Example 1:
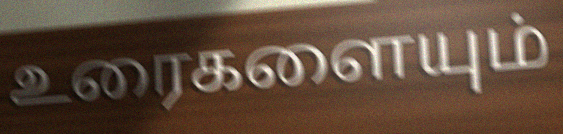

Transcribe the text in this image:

உரைகளையும்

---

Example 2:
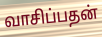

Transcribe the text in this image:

வாசிப்பதன்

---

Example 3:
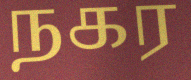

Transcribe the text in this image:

நகர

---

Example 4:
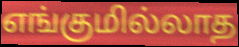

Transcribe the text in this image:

எங்குமில்லாத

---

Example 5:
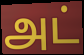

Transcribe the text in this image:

அட்